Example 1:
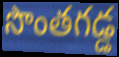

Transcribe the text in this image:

సొంతగడ్డ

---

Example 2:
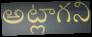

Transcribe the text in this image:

అట్లాగని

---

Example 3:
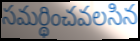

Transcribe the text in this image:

సమర్థించవలసిన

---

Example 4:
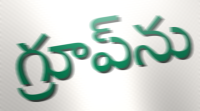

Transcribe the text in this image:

గ్రూప్‌ను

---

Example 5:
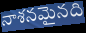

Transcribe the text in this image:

నాశనమైనది